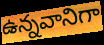
ఉన్నవానిగా